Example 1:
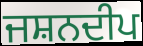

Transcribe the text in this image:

ਜਸ਼ਨਦੀਪ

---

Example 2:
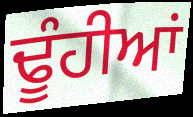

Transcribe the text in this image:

ਢੂੰਹੀਆਂ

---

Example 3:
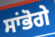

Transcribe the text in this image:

ਸਾਂਭੋਗੇ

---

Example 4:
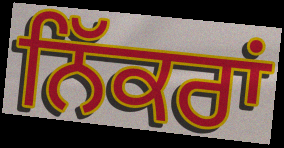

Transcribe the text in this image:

ਨਿੱਕਰਾਂ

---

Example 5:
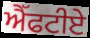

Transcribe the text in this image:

ਐੱਫਟੀਏ